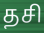
தசி